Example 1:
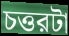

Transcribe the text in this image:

চত্তরটা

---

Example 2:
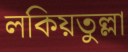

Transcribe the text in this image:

লকিয়তুল্লা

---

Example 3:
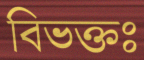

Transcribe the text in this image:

বিভক্তঃ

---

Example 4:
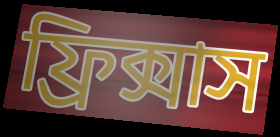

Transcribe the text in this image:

ফ্রিক্সাস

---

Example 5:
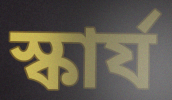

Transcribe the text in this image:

স্কার্য